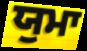
ਯੁਮਾ